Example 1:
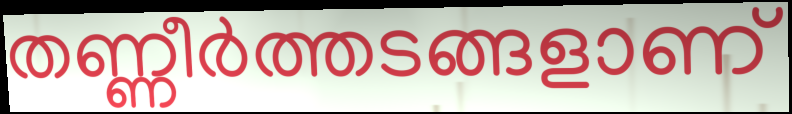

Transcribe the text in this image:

തണ്ണീർത്തടങ്ങളാണ്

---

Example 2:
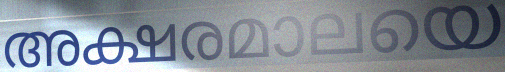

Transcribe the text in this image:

അക്ഷരമാലയെ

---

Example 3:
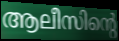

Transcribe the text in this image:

ആലീസിന്റെ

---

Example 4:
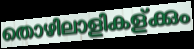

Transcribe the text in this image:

തൊഴിലാളികള്ക്കും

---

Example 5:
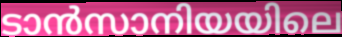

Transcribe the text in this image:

ടാൻസാനിയയിലെ